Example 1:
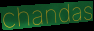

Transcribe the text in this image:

chandas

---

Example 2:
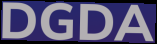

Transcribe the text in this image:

DGDA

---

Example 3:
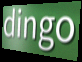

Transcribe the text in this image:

dingo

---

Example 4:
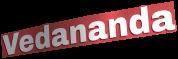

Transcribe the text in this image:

Vedananda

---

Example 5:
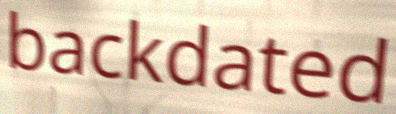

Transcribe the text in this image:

backdated